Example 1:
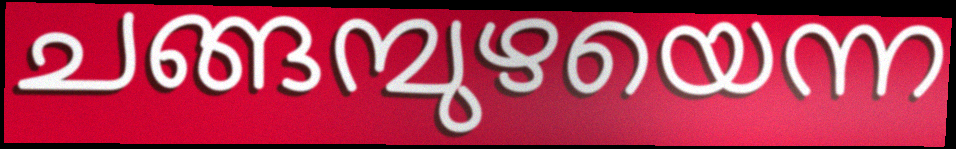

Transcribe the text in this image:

ചങ്ങമ്പുഴയെന്ന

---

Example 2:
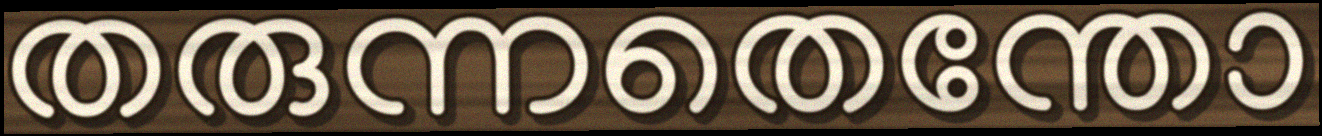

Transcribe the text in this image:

തരുന്നതെന്തോ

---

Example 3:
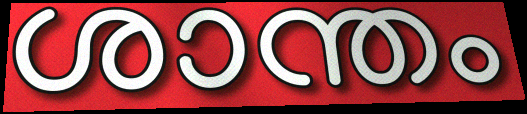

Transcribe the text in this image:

ശാന്തം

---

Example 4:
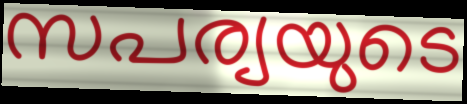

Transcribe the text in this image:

സപര്യയുടെ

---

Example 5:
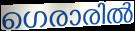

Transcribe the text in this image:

ഗെരാരിൽ